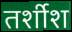
तर्शीश